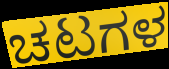
ಚಟಗಳ